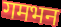
गमभन